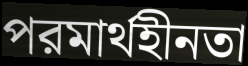
পরমার্থহীনতা